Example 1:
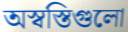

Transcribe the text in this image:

অস্বস্তিগুলো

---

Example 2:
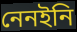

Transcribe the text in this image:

নেনইনি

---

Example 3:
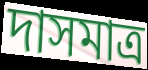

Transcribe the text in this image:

দাসমাত্র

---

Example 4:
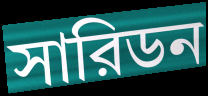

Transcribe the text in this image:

সারিডন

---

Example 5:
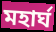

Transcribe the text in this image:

মহার্ঘ